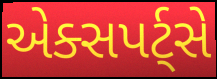
એક્સપર્ટ્સે